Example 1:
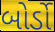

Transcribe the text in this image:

બોર્ડો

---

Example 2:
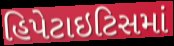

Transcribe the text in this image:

હિપેટાઇટિસમાં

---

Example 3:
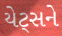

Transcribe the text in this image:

યેટ્સને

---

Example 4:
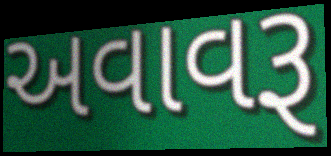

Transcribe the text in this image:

અવાવરૂ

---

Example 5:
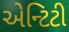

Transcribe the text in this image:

એન્ટિટી